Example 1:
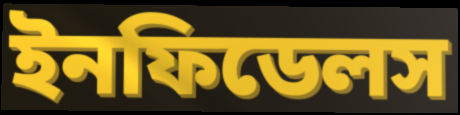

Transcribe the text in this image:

ইনফিডেলস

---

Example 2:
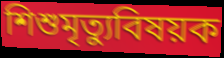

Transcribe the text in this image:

শিশুমৃত্যুবিষয়ক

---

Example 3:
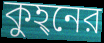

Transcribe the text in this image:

কুহ্‌নের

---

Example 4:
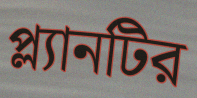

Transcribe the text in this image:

প্ল্যানটির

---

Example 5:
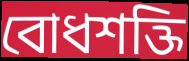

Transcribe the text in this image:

বোধশক্তি